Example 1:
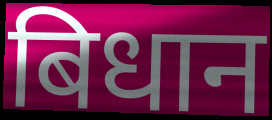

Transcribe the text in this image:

बिधान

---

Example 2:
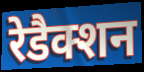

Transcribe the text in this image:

रेडैक्शन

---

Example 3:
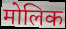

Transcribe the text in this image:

मोलिक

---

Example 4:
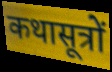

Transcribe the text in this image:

कथासूत्रों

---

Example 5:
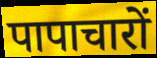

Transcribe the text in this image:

पापाचारों